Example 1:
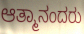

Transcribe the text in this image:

ಆತ್ಮಾನಂದರು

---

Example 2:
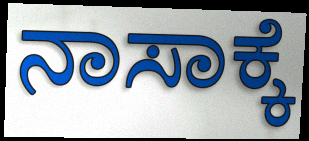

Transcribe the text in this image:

ನಾಸಾಕ್ಕೆ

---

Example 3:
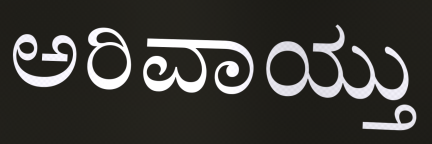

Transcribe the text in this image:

ಅರಿವಾಯ್ತು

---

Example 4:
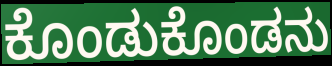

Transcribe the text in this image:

ಕೊಂಡುಕೊಂಡನು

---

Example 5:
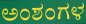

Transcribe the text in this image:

ಅಂಶಂಗಳ